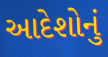
આદેશોનું